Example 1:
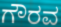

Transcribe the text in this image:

ಗೌರವ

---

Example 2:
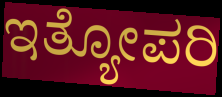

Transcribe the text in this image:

ಇತ್ಯೋಪರಿ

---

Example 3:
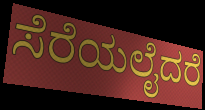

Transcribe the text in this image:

ಸೆರೆಯಲೈದರೆ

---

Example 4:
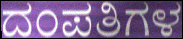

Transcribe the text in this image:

ದಂಪತಿಗಳ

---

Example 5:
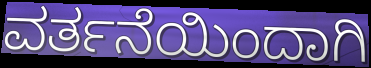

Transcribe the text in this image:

ವರ್ತನೆಯಿಂದಾಗಿ